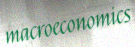
macroeconomics